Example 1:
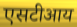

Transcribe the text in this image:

एसटीआय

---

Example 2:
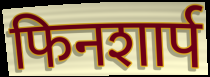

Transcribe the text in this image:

फिनशार्प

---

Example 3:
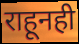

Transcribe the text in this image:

राहूनही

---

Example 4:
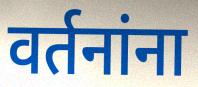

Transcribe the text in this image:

वर्तनांना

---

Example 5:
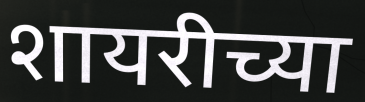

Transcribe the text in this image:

शायरीच्या